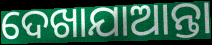
ଦେଖାଯାଆନ୍ତା